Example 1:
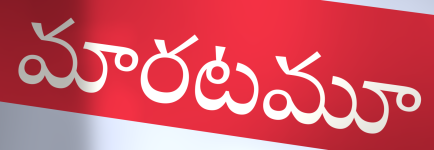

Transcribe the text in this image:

మారటమూ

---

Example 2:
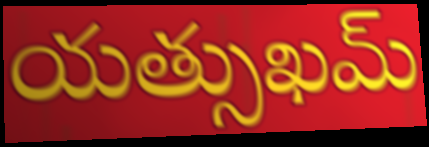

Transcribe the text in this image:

యత్సుఖమ్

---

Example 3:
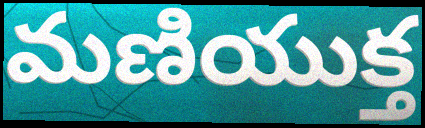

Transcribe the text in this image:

మణియుక్త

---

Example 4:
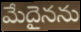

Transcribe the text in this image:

మేదైనను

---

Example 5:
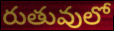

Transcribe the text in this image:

రుతువులో